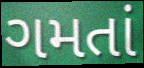
ગમતાં